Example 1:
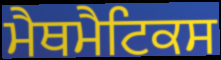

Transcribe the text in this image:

ਮੈਥਮੈਟਿਕਸ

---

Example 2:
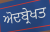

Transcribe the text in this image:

ਅੋਦਬ੍ਰੇਖਤ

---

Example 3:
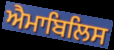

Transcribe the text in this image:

ਐਮਾਬਿਲਿਸ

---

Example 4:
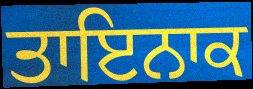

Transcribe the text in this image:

ਤਾਇਨਾਕ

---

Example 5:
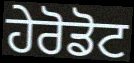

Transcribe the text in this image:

ਹੇਰੋਡੋਟ